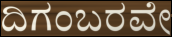
ದಿಗಂಬರವೇ